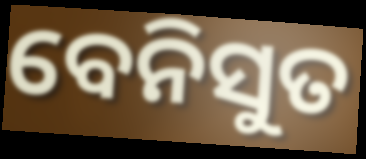
ବେନିସୁତ